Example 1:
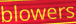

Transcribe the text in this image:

blowers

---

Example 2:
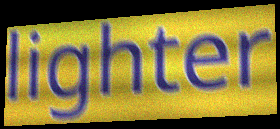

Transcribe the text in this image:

lighter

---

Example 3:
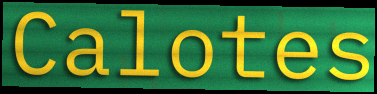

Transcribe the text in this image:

Calotes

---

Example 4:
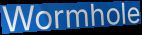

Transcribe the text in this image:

Wormhole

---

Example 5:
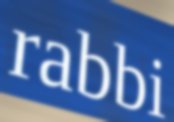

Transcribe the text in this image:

rabbi